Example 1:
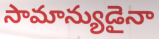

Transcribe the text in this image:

సామాన్యుడైనా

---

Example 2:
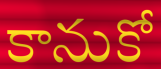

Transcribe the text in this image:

కానుకో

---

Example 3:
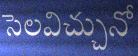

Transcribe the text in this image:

సెలవిచ్చునో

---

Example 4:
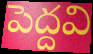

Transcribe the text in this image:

పెద్దవి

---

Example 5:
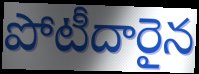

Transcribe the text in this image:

పోటీదారైన